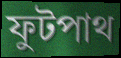
ফুটপাথ